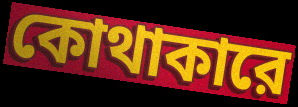
কোথাকারে